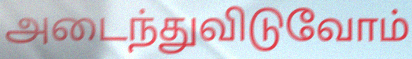
அடைந்துவிடுவோம்